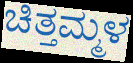
ಚಿತ್ತಮ್ಮಳ